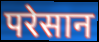
परेसान